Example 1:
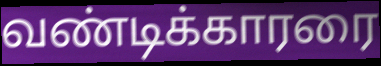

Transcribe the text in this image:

வண்டிக்காரரை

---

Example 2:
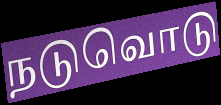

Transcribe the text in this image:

நடுவொடு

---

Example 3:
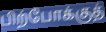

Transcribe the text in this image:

பிற்போக்குத்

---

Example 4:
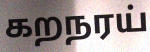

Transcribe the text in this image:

கறநரய்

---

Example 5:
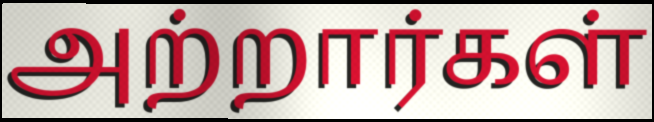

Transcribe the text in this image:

அற்றார்கள்